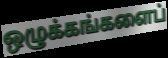
ஒழுக்கங்களைப்